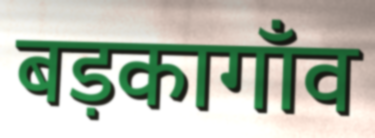
बड़कागाँव